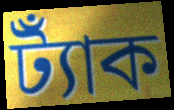
ট্যাঁক